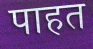
पाहत